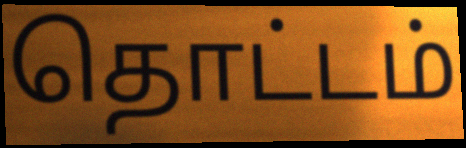
தொட்டம்